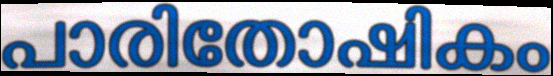
പാരിതോഷികം